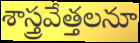
శాస్త్రవేత్తలనూ